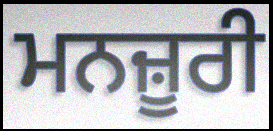
ਮਨਜ਼ੂਰੀ